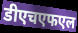
डीएचएफएल